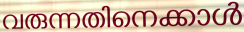
വരുന്നതിനെക്കാൾ